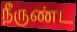
நீருண்ட